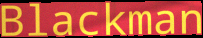
Blackman